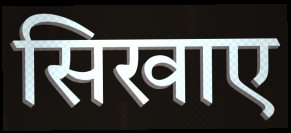
सिखाए